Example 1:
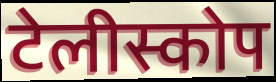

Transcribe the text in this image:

टेलीस्कोप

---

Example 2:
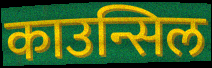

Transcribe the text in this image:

काउन्सिल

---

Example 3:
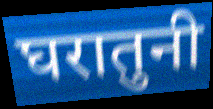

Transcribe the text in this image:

घरातुनी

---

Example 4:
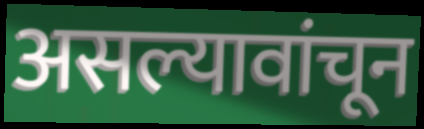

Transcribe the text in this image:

असल्यावांचून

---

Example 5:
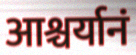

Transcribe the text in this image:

आश्चर्यानं